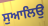
ਸੁਆਲਿਉ